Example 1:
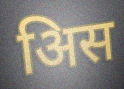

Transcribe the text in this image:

अिस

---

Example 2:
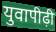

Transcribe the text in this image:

युवापीढ़ी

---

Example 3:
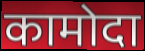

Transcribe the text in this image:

कामोदा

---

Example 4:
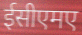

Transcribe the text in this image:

ईसीएमए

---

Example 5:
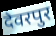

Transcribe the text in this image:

देवरपुर